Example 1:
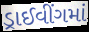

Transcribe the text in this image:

ડ્રાઈવીંગમાં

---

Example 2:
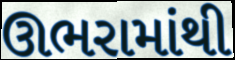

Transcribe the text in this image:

ઊભરામાંથી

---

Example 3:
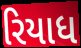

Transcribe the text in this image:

રિયાધ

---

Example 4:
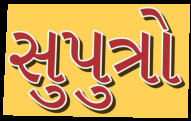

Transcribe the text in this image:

સુપુત્રો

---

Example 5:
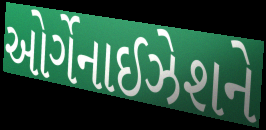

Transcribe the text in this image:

ઓર્ગેનાઈઝેશને